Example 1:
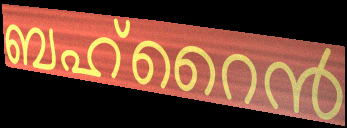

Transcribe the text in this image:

ബഹ്റൈൻ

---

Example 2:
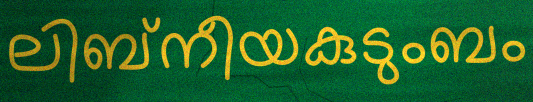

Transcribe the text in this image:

ലിബ്നീയകുടുംബം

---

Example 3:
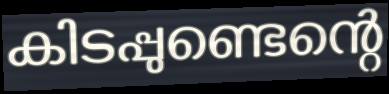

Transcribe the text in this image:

കിടപ്പുണ്ടെന്റെ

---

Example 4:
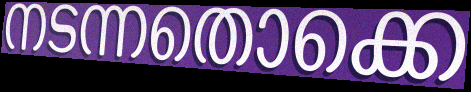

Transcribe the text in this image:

നടന്നതൊക്കെ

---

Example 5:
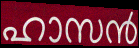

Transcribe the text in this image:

ഹാസൻ